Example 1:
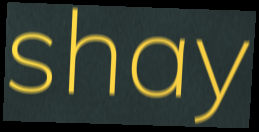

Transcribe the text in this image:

shay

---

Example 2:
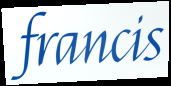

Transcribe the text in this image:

francis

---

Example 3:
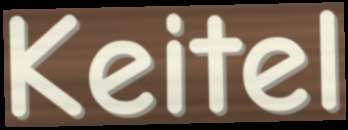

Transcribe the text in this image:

Keitel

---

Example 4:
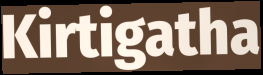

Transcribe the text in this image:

Kirtigatha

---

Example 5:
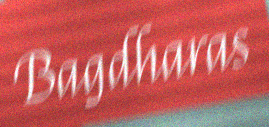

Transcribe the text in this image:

Bagdharas